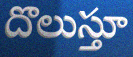
దొలుస్తూ